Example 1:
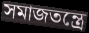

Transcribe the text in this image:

সমাজতন্ত্রে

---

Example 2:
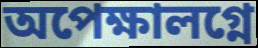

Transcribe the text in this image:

অপেক্ষালগ্নে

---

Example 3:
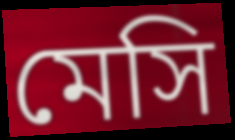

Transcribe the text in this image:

মেসি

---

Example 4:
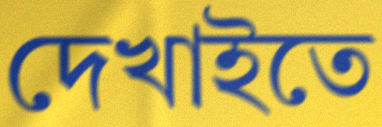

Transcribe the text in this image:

দেখাইতে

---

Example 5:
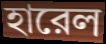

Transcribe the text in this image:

হারেল